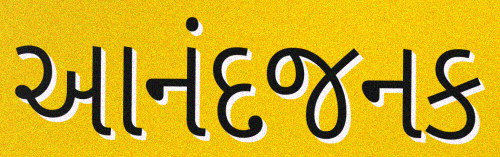
આનંદજનક